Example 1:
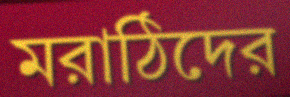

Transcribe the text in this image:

মরাঠিদের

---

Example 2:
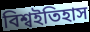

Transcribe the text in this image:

বিশ্বইতিহাস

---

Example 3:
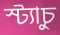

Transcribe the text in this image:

স্ট্যাচু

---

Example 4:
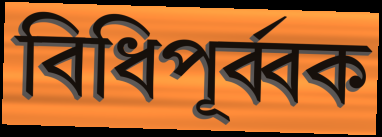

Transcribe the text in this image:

বিধিপূর্ব্বক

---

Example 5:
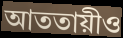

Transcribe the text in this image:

আততায়ীও